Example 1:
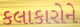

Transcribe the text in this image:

કલાકારોને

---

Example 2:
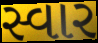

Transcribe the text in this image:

સ્વાર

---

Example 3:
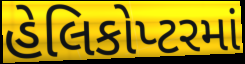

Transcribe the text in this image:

હેલિકોપ્ટરમાં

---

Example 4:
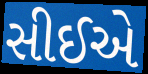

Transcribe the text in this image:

સીઈએ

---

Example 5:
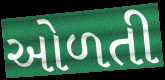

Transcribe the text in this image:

ઓળતી